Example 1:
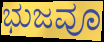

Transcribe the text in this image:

ಭುಜವೂ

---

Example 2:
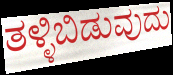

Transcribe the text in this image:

ತಳ್ಳಿಬಿಡುವುದು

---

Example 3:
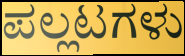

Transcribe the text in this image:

ಪಲ್ಲಟಗಳು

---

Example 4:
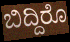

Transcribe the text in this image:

ಬಿದ್ದಿರೊ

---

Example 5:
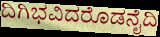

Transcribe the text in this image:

ದಿಗಿಭವಿದರೊಡನೈದಿ